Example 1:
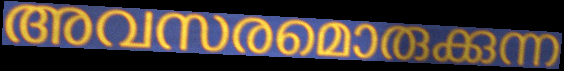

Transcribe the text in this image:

അവസരമൊരുക്കുന്ന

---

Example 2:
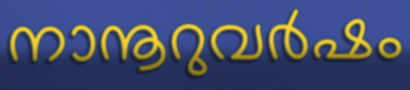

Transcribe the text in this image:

നാനൂറുവർഷം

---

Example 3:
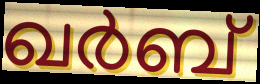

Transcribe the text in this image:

ഖർബ്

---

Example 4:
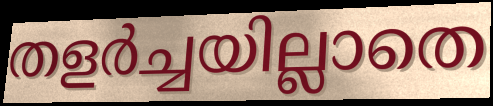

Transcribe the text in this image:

തളർച്ചയില്ലാതെ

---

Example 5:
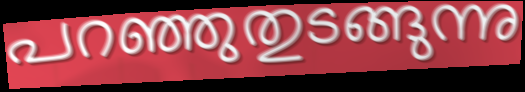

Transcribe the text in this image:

പറഞ്ഞുതുടങ്ങുന്നു